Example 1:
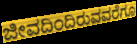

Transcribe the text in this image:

ಜೀವದಿಂದಿರುವವರೆಗೂ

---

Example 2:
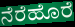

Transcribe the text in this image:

ನೆರೆಹೊರೆ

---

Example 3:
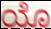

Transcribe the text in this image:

ಯೊ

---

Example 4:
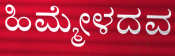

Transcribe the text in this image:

ಹಿಮ್ಮೇಳದವ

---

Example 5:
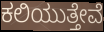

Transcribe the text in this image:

ಕಲಿಯುತ್ತೇವೆ